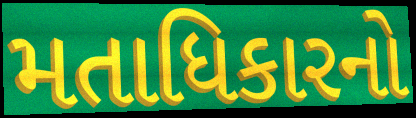
મતાધિકારનો